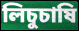
লিচুচাষি